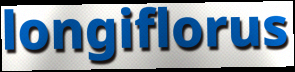
longiflorus